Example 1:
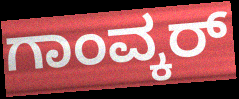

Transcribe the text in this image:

ಗಾಂವ್ಕರ್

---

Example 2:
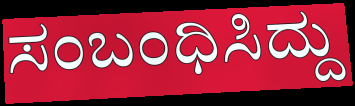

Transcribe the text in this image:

ಸಂಬಂಧಿಸಿದ್ದು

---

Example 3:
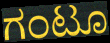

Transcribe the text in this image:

ಗಂಟೂ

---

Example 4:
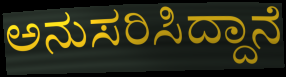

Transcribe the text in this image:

ಅನುಸರಿಸಿದ್ದಾನೆ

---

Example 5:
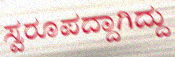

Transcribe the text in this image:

ಸ್ವರೂಪದ್ದಾಗಿದ್ದು